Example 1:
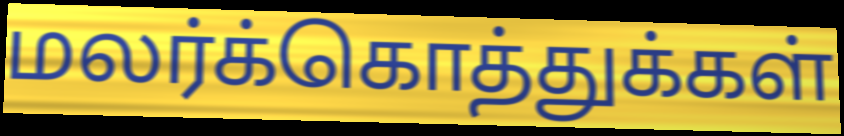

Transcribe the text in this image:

மலர்க்கொத்துக்கள்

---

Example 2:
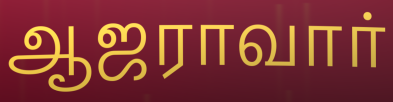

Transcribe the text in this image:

ஆஜராவார்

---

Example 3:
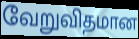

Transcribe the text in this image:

வேறுவிதமான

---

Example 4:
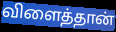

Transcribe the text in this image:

விளைத்தான்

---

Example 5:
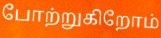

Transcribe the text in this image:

போற்றுகிறோம்